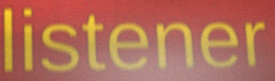
listener